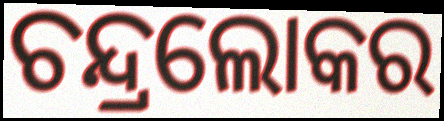
ଚନ୍ଦ୍ରଲୋକର